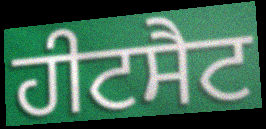
ਹੀਟਸੈਟ